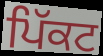
ਪਿੱਕਟ